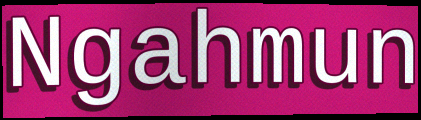
Ngahmun